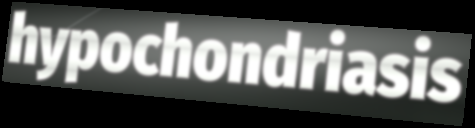
hypochondriasis